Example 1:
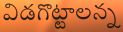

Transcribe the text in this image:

విడగొట్టాలన్న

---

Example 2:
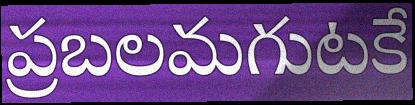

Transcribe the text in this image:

ప్రబలమగుటకే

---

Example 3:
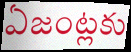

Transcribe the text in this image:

ఏజంట్లకు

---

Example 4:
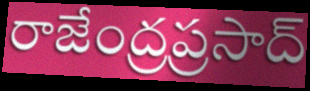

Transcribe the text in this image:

రాజేంద్రప్రసాద్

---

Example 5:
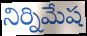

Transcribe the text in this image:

నిర్నిమేష